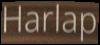
Harlap